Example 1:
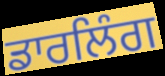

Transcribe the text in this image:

ਡਾਰਲਿੰਗ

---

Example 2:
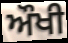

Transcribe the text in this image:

ਔਖੀ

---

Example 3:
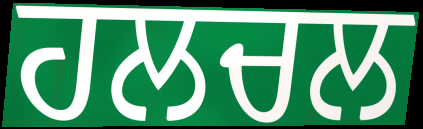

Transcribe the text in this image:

ਹਲਚਲ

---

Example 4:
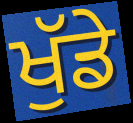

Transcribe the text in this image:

ਖੁੱਡੇ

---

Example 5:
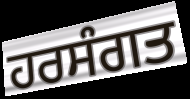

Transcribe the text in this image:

ਹਰਸੰਗਤ